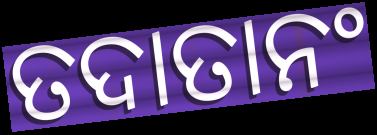
ତଦାତାନଂ